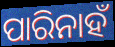
ପାରିନାହଁ